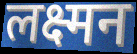
लक्ष्मन